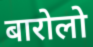
बारोलो